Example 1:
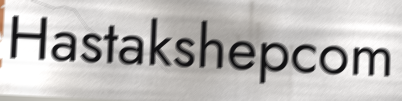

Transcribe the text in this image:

Hastakshepcom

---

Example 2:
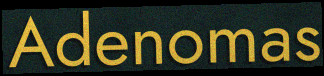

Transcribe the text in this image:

Adenomas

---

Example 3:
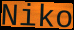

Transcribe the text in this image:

Niko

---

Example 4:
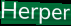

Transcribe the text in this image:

Herper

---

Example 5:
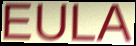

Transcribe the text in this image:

EULA